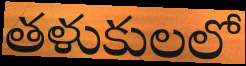
తళుకులలో